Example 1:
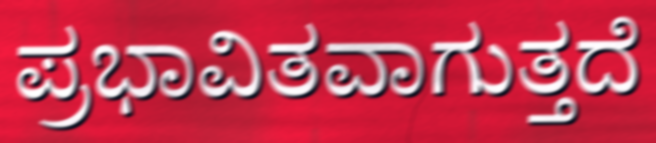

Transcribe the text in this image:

ಪ್ರಭಾವಿತವಾಗುತ್ತದೆ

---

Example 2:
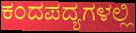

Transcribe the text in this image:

ಕಂದಪದ್ಯಗಳಲ್ಲಿ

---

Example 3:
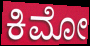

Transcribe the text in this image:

ಕಿಮೋ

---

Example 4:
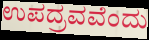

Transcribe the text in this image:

ಉಪದ್ರವವೆಂದು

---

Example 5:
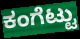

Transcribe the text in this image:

ಕಂಗೆಟ್ಟು